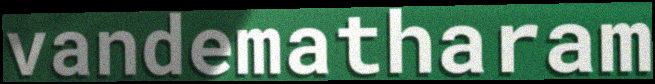
vandematharam